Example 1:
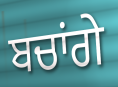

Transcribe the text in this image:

ਬਚਾਂਗੇ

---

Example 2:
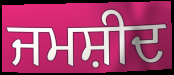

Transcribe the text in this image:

ਜਮਸ਼ੀਦ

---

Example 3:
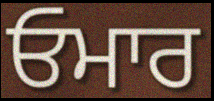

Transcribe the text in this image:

ਓਮਾਰ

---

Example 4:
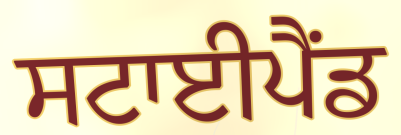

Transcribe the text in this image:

ਸਟਾਈਪੈਂਡ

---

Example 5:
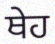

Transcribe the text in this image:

ਥੇਹ